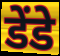
डेंडे